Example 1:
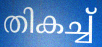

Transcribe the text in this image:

തികച്ച്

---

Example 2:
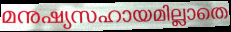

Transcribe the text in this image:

മനുഷ്യസഹായമില്ലാതെ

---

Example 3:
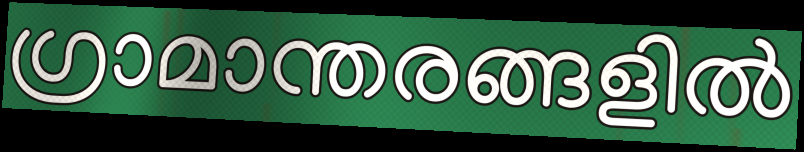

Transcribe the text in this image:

ഗ്രാമാന്തരങ്ങളിൽ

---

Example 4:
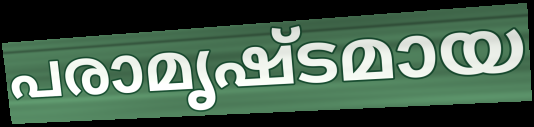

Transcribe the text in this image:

പരാമൃഷ്ടമായ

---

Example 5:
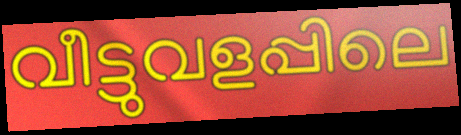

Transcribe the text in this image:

വീട്ടുവളപ്പിലെ